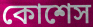
কোশেস